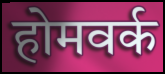
होमवर्क